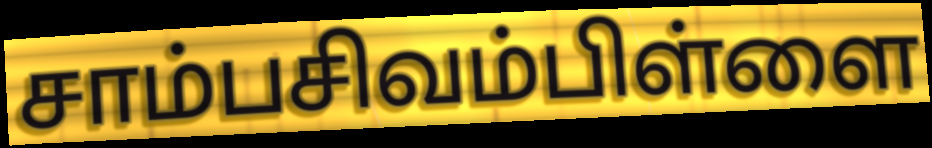
சாம்பசிவம்பிள்ளை